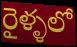
రైళ్ళలో